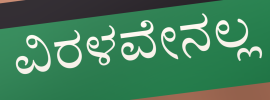
ವಿರಳವೇನಲ್ಲ